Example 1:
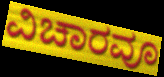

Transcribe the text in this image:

ವಿಚಾರವೂ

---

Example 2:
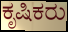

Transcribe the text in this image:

ಕೃಷಿಕರು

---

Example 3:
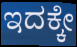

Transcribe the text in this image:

ಇದಕ್ಕೇ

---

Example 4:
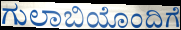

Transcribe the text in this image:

ಗುಲಾಬಿಯೊಂದಿಗೆ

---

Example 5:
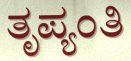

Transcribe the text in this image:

ತೃಪ್ಯಂತಿ